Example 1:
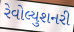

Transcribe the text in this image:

રેવોલ્યુશનરી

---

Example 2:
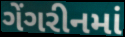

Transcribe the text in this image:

ગેંગરીનમાં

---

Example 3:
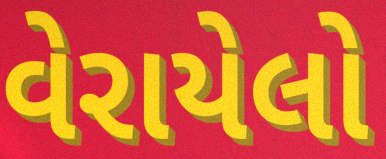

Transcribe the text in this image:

વેરાયેલો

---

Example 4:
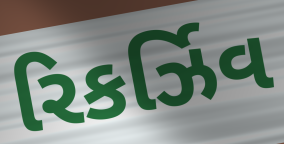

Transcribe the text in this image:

રિકર્ઝિવ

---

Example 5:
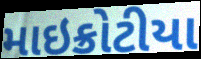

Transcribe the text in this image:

માઇક્રોટીયા